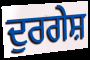
ਦੁਰਗੇਸ਼